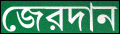
জেরদান